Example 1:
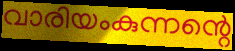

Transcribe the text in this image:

വാരിയംകുന്നന്റെ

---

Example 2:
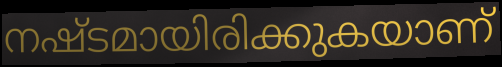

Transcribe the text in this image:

നഷ്ടമായിരിക്കുകയാണ്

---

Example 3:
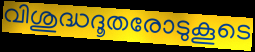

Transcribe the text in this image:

വിശുദ്ധദൂതരോടുകൂടെ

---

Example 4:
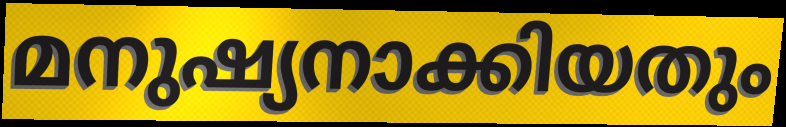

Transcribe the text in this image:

മനുഷ്യനാക്കിയതും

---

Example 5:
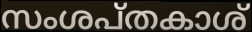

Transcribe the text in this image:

സംശപ്തകാശ്